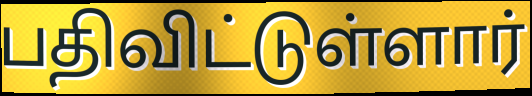
பதிவிட்டுள்ளார்